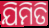
ଯିମିତି